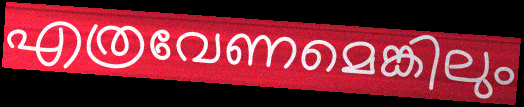
എത്രവേണമെങ്കിലും